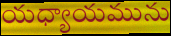
యధ్యాయమును